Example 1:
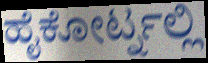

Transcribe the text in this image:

ಹೈಕೋರ್ಟ್ನಲ್ಲಿ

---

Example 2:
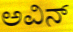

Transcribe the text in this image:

ಅವಿನ್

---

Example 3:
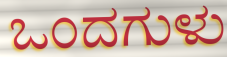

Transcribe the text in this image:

ಒಂದಗುಳು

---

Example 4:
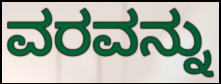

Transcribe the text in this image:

ವರವನ್ನು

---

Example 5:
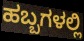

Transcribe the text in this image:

ಹಬ್ಬಗಳಲ್ಲಿ